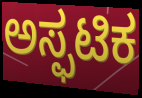
ಅಸ್ಫಟಿಕ